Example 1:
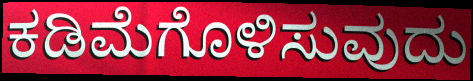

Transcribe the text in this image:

ಕಡಿಮೆಗೊಳಿಸುವುದು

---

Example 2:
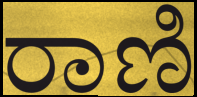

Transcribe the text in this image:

ರಾಣಿ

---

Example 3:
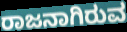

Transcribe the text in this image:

ರಾಜನಾಗಿರುವ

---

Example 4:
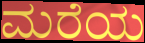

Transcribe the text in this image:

ಮರೆಯ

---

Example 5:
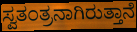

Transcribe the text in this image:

ಸ್ವತಂತ್ರನಾಗಿರುತ್ತಾನೆ